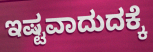
ಇಷ್ಟವಾದುದಕ್ಕೆ